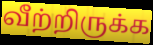
வீற்றிருக்க